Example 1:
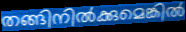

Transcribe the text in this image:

തങ്ങിനിൽക്കുമെങ്കിൽ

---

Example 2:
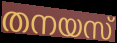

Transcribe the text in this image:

തനയസ്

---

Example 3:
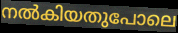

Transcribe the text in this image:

നൽകിയതുപോലെ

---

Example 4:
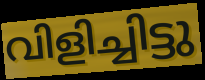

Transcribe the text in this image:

വിളിച്ചിട്ടു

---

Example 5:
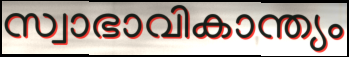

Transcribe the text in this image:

സ്വാഭാവികാന്ത്യം